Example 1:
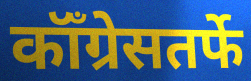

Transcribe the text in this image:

कॉँग्रेसतर्फे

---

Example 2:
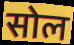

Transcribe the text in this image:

सोल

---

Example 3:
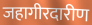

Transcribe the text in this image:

जहागीरदारीण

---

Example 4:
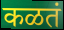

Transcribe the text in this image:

कळतं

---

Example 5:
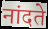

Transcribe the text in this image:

नांदते